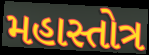
મહાસ્તોત્ર